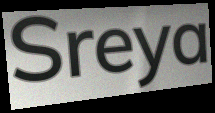
Sreya